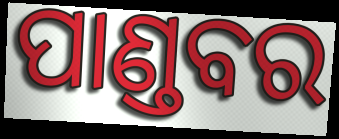
ପାଣ୍ଡବର